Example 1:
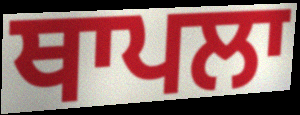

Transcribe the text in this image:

ਥਾਪਲਾ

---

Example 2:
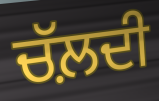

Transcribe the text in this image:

ਚੱਲ਼ਦੀ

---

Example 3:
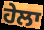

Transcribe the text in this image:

ਹੇਲਾ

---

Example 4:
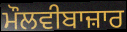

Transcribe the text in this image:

ਮੌਲਵੀਬਾਜ਼ਾਰ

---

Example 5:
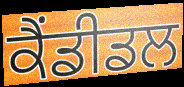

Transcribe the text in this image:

ਕੈਂਡੀਡਲ